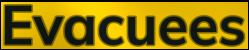
Evacuees